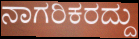
ನಾಗರಿಕರದ್ದು